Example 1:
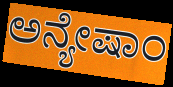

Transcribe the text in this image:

ಅನ್ಯೇಷಾಂ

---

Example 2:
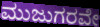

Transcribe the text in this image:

ಮುಜುಗರವೇ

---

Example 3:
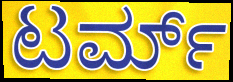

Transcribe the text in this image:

ಟರ್ಮ್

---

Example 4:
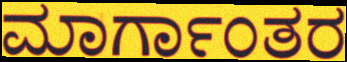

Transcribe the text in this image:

ಮಾರ್ಗಾಂತರ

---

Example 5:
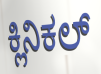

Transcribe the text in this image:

ಕ್ಲಿನಿಕಲ್